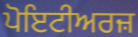
ਪੋਇਟੀਅਰਜ਼